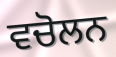
ਵਚੋਲਨ